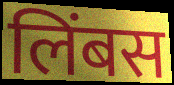
लिंबस